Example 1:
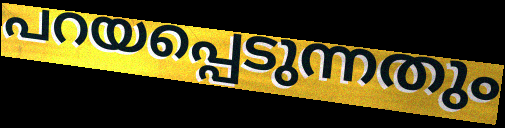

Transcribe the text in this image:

പറയപ്പെടുന്നതും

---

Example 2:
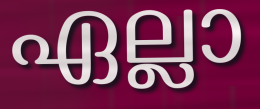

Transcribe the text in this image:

ഏല്ലാ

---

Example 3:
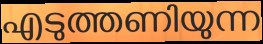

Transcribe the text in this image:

എടുത്തണിയുന്ന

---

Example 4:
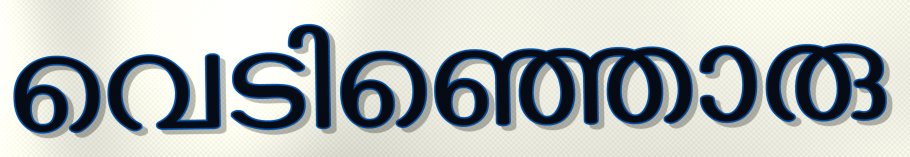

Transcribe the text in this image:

വെടിഞ്ഞൊരു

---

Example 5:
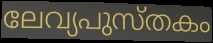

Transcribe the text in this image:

ലേവ്യപുസ്തകം